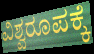
ವಿಶ್ವರೂಪಕ್ಕೆ